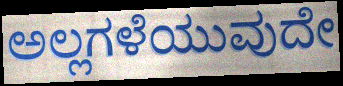
ಅಲ್ಲಗಳೆಯುವುದೇ